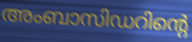
അംബാസിഡറിന്റെ